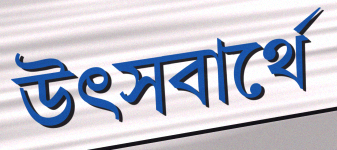
উৎসবার্থে